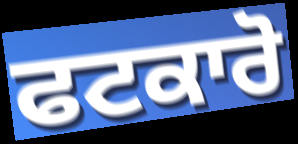
ਫਟਕਾਰੋ